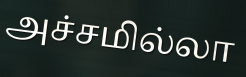
அச்சமில்லா